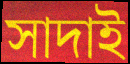
সাদাই